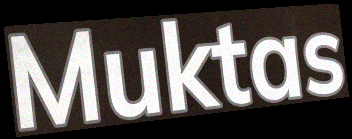
Muktas